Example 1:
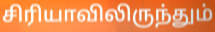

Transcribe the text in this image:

சிரியாவிலிருந்தும்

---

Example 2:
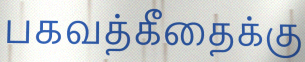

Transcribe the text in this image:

பகவத்கீதைக்கு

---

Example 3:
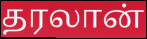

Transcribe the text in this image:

தரலான்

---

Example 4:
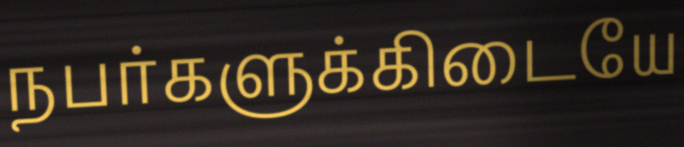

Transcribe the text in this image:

நபர்களுக்கிடையே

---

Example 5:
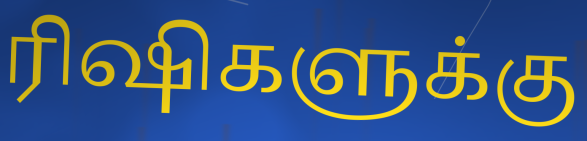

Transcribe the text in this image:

ரிஷிகளுக்கு